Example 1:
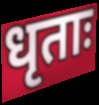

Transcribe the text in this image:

धृताः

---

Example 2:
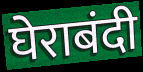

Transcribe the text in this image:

घेराबंदी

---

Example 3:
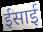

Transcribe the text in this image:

ईसाई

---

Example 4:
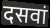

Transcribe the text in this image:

दसवां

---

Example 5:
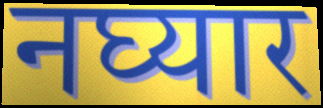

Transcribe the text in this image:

नघ्यार